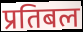
प्रतिबल